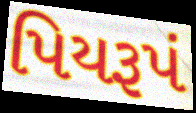
પિયરૂપં